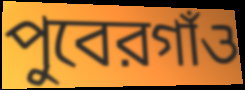
পুবেরগাঁও